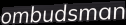
ombudsman